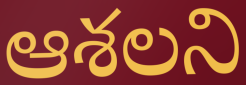
ఆశలని